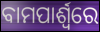
ବାମପାର୍ଶ୍ଵରେ